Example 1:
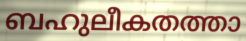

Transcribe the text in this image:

ബഹുലീകതത്താ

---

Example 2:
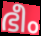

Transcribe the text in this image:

ഭീം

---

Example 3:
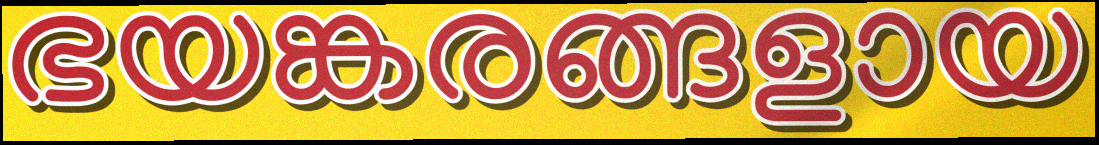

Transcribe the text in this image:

ഭയങ്കരങ്ങളായ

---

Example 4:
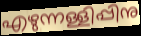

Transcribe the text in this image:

എഴുന്നള്ളിപ്പിനു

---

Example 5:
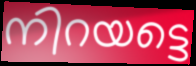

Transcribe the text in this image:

നിറയട്ടെ